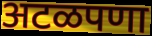
अटळपणा